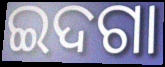
ଇଦଗା